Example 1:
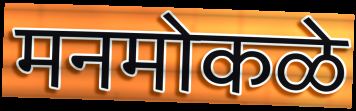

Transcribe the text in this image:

मनमोकळे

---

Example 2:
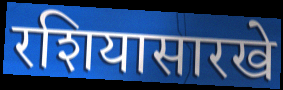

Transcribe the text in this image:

रशियासारखे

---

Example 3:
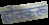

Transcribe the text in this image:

होतकरू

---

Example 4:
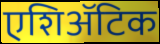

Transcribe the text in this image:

एशिॲटिक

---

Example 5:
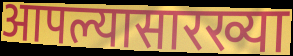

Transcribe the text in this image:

आपल्यासारख्या